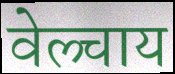
वेल्चाय